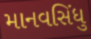
માનવસિંધુ